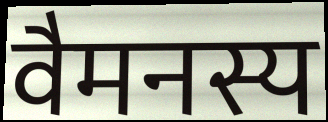
वैमनस्य